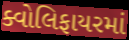
ક્વોલિફાયરમાં